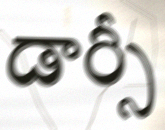
డార్సీ